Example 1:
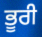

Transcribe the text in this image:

ਭੂਰੀ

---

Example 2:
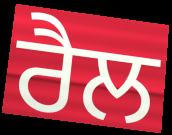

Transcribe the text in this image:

ਰੈਲ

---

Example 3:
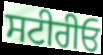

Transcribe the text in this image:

ਸਟੀਰੀਓ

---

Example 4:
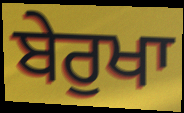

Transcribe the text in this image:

ਬੇਰੁਖਾ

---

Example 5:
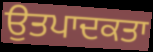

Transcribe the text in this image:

ਉਤਪਾਦਕਤਾ